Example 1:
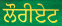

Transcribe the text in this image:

ਲੌਰੀਏਟ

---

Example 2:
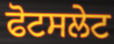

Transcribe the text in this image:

ਫੋਟਸਲੇਟ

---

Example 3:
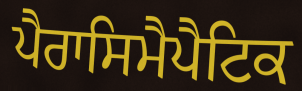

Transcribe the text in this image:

ਪੈਰਾਸਿਮੈਪੈਟਿਕ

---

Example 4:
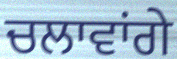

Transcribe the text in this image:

ਚਲਾਵਾਂਗੇ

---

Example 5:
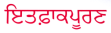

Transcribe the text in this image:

ਇਤਫ਼ਾਕਪੂਰਣ